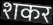
शकर